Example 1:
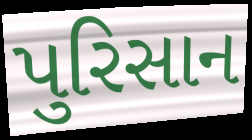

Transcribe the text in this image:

પુરિસાન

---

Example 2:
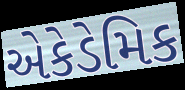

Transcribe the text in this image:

એકેડેમિક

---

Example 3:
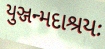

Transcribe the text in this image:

યુઞ્જન્મદાશ્રયઃ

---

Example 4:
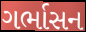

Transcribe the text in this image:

ગર્ભાસન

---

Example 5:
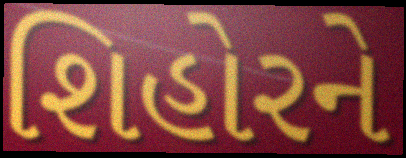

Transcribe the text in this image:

શિહોરને